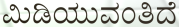
ಮಿಡಿಯುವಂತಿದೆ